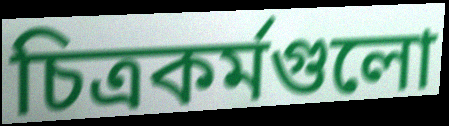
চিত্রকর্মগুলো